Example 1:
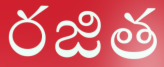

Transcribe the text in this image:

రజిత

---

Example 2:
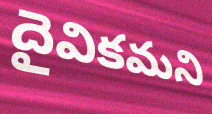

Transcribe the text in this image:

దైవికమని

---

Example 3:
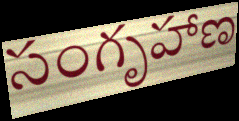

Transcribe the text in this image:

సంగృహాణ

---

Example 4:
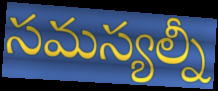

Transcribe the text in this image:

సమస్యల్నీ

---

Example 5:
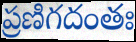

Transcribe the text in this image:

ప్రణిగదంతః